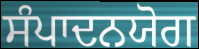
ਸੰਪਾਦਨਯੋਗ